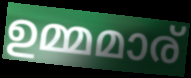
ഉമ്മമാര്